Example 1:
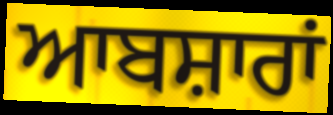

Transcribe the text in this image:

ਆਬਸ਼ਾਰਾਂ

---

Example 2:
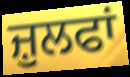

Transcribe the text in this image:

ਜ਼ੁਲਫਾਂ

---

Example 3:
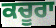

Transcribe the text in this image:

ਕਚੂਰਾ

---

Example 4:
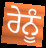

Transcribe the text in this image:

ਰੇਨੂੰ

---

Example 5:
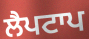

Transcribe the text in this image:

ਲੈਪਟਾਪ